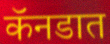
कॅनडात